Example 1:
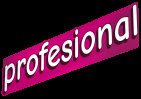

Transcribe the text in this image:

profesional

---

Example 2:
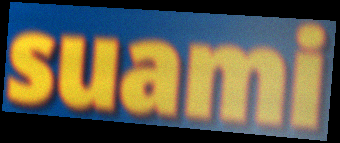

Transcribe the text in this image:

suami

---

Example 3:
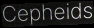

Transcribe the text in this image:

Cepheids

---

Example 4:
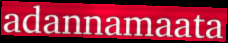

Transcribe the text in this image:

adannamaata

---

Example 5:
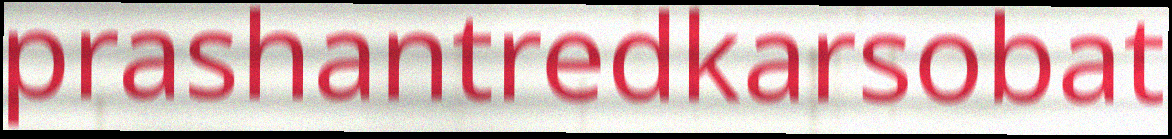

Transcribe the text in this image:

prashantredkarsobat